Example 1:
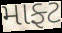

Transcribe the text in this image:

માફ્ટ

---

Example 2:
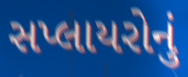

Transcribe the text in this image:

સપ્લાયરોનું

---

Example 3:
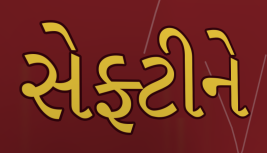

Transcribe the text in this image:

સેફ્ટીને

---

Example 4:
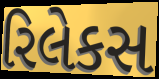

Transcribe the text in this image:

રિલેકસ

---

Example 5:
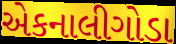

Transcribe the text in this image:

એકનાલીગોડા